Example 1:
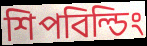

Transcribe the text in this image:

শিপবিল্ডিং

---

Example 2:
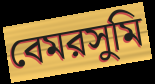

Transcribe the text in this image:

বেমরসুমি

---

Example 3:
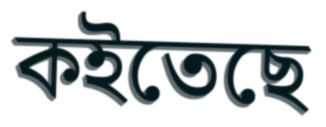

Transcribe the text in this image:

কইতেছে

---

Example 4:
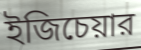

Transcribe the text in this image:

ইজিচেয়ার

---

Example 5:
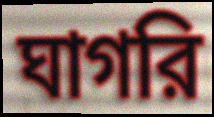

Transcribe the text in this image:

ঘাগরি